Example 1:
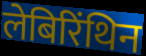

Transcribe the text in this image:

लेबिरिंथिन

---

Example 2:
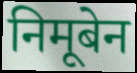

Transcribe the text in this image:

निमूबेन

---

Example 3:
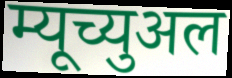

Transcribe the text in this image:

म्यूच्युअल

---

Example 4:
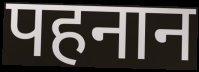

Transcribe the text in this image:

पहनान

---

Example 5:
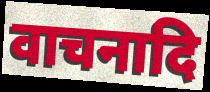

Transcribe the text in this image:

वाचनादि